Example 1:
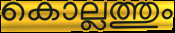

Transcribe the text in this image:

കൊല്ലത്തും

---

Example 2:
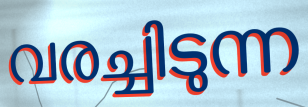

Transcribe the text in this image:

വരച്ചിടുന്ന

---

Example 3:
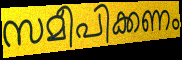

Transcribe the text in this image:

സമീപിക്കണം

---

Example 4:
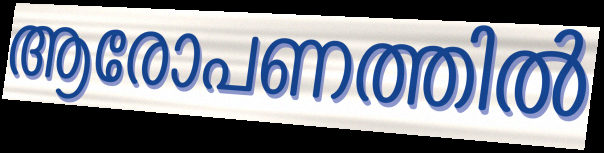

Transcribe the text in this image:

ആരോപണത്തിൽ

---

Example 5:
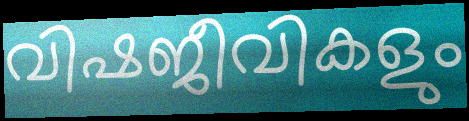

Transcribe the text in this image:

വിഷജീവികളും